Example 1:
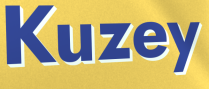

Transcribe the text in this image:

Kuzey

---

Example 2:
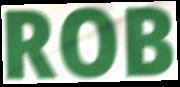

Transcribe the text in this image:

ROB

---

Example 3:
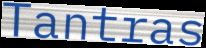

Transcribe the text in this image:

Tantras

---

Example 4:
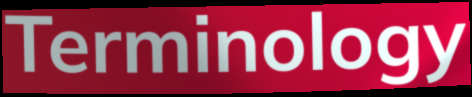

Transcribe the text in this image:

Terminology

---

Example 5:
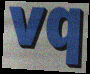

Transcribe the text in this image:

vq